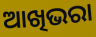
ଆଖିଭରା